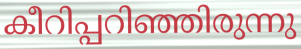
കീറിപ്പറിഞ്ഞിരുന്നു